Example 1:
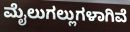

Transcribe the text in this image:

ಮೈಲುಗಲ್ಲುಗಳಾಗಿವೆ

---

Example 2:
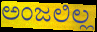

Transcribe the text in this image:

ಅಂಜಲಿಲ್ಲ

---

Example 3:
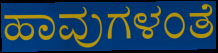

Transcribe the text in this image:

ಹಾವುಗಳಂತೆ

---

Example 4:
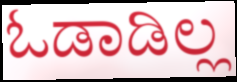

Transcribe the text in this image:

ಓಡಾಡಿಲ್ಲ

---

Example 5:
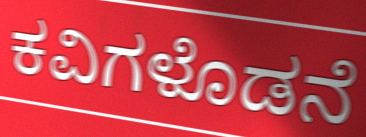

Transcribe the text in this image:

ಕವಿಗಳೊಡನೆ